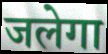
जलेगा